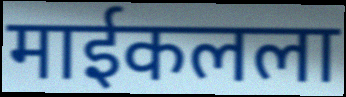
माईकलला